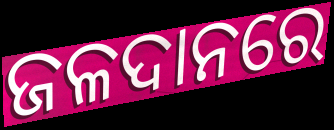
ଜଳଦାନରେ